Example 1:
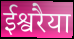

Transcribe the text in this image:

ईश्वरैया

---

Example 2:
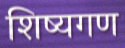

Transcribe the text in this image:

शिष्यगण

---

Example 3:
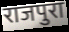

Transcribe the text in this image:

राजपुरा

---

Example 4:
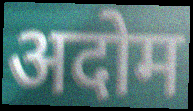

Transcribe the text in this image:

अदोम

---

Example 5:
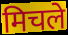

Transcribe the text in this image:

मिचले